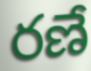
రణే